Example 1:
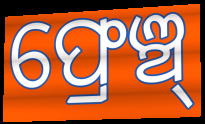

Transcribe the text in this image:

ଫ୍ରେଞ୍ଚ୍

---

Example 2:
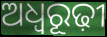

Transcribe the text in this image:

ଅଧ୍ଵରୂଢ଼ୀ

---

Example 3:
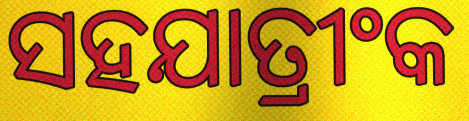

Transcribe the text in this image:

ସହଯାତ୍ରୀଂକ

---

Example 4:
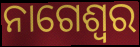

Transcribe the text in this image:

ନାଗେଶ୍ଵର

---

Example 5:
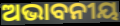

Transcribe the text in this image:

ଅଭାବନୀୟ